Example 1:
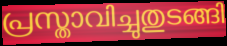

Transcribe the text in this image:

പ്രസ്താവിച്ചുതുടങ്ങി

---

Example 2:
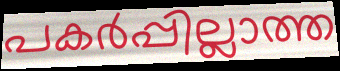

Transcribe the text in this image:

പകർപ്പില്ലാത്ത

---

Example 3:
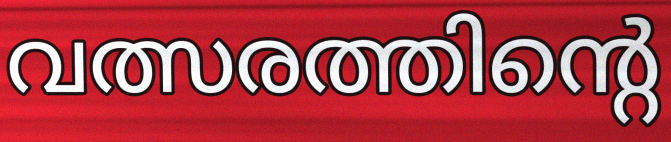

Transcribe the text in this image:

വത്സരത്തിന്റെ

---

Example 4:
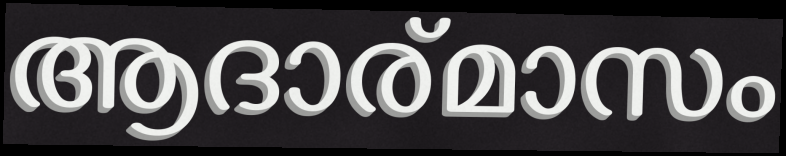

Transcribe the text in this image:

ആദാര്മാസം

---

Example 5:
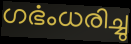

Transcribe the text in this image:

ഗൎഭംധരിച്ചു